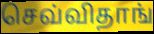
செவ்விதாங்